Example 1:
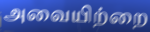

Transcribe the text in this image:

அவையிற்றை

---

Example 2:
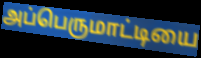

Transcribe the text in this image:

அப்பெருமாட்டியை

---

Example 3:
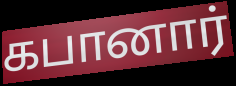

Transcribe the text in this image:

கபானார்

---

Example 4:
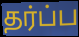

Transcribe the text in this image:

தர்ப்ப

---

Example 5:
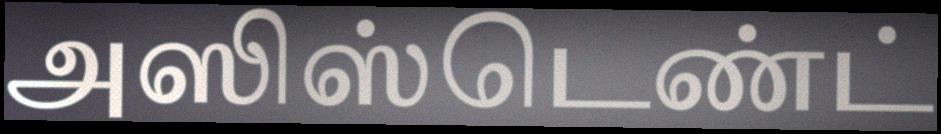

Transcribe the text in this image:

அஸிஸ்டெண்ட்